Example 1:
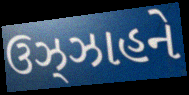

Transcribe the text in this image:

ઉઝ્ઝાહને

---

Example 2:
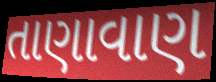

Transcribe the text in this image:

તાણાવાણ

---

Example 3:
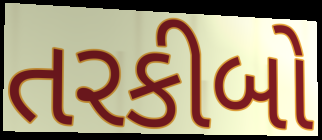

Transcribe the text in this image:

તરકીબો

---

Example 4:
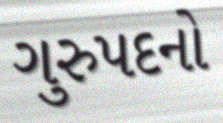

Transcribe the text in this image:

ગુરુપદનો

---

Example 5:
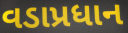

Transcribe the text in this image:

વડાપ્રધાન